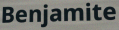
Benjamite